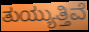
ತುಯ್ಯುತ್ತಿವೆ